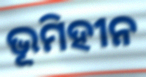
ଭୂମିହୀନ